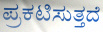
ಪ್ರಕಟಿಸುತ್ತದೆ